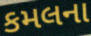
કમલના